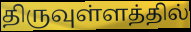
திருவுள்ளத்தில்